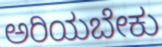
ಅರಿಯಬೇಕು